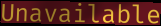
Unavailable